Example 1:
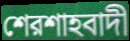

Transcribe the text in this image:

শেরশাহবাদী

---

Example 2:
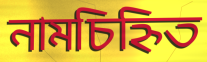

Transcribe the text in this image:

নামচিহ্নিত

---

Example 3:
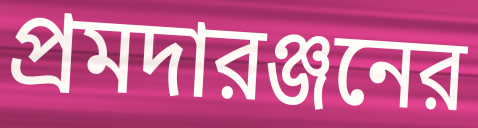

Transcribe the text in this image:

প্রমদারঞ্জনের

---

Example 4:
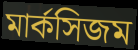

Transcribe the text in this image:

মার্কসিজম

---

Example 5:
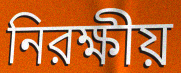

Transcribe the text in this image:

নিরক্ষীয়